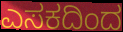
ಎಸಕದಿಂದ